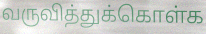
வருவித்துக்கொள்க